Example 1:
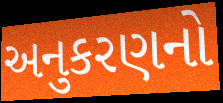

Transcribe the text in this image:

અનુકરણનો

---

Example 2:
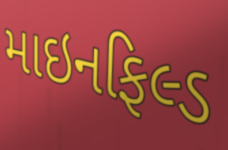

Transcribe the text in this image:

માઇનફિલ્ડ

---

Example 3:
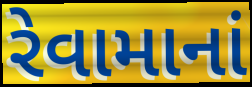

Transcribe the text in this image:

રેવામાનાં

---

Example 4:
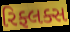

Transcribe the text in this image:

રિફ્લક્સ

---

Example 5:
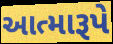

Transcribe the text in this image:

આત્મારૂપે